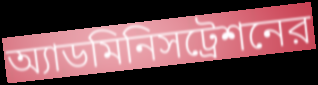
অ্যাডমিনিসট্রেশনের